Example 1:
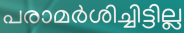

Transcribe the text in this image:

പരാമർശിച്ചിട്ടില്ല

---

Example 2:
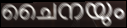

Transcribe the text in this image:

ചൈനയും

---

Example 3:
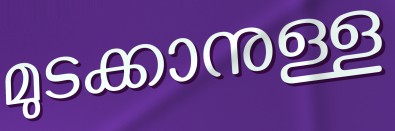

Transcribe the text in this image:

മുടക്കാനുള്ള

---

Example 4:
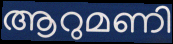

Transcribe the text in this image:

ആറുമണി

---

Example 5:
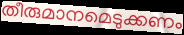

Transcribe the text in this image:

തീരുമാനമെടുക്കണം